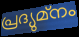
പ്രദ്യുമ്നം